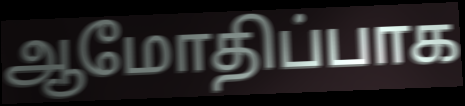
ஆமோதிப்பாக